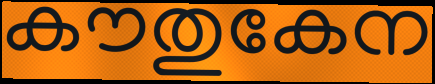
കൗതുകേന